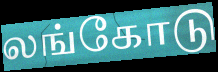
லங்கோடு